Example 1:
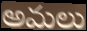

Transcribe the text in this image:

అమలు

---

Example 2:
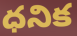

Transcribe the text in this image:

ధనిక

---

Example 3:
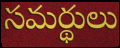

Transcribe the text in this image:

సమర్థులు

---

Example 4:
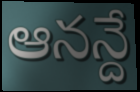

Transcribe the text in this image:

ఆనన్దే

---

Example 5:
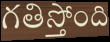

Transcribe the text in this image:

గతిస్తోంది